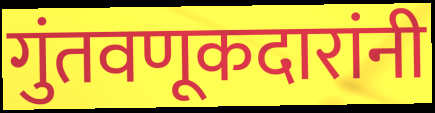
गुंतवणूकदारांनी